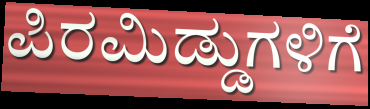
ಪಿರಮಿಡ್ಡುಗಳಿಗೆ